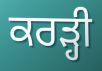
ਕਰੜ੍ਹੀ